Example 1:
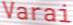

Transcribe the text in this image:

Varai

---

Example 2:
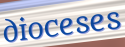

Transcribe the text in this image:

dioceses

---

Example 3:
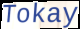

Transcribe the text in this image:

Tokay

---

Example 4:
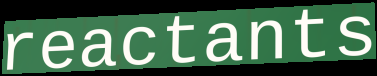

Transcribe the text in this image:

reactants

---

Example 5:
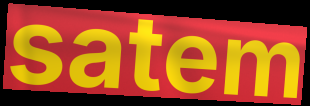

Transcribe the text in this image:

satem